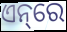
ଏନ୍‌ରେ